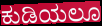
ಕುಡಿಯಲೂ